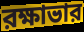
রক্ষাভার